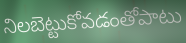
నిలబెట్టుకోవడంతోపాటు